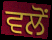
ਵਲੋਂ